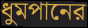
ধুমপানের